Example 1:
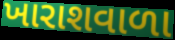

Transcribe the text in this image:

ખારાશવાળા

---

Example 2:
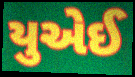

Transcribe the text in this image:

યુએઈ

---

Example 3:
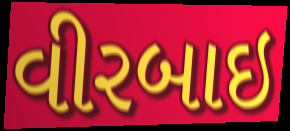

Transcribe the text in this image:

વીરબાઇ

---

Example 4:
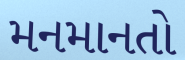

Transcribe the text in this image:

મનમાનતો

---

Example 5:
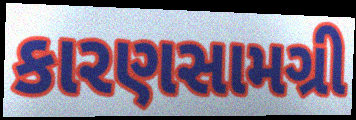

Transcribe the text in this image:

કારણસામગ્રી